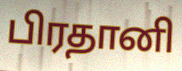
பிரதானி